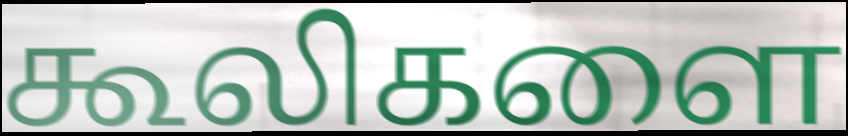
கூலிகளை